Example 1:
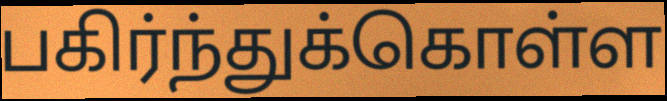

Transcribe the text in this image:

பகிர்ந்துக்கொள்ள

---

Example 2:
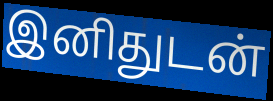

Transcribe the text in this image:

இனிதுடன்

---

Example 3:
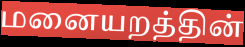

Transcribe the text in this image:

மனையறத்தின்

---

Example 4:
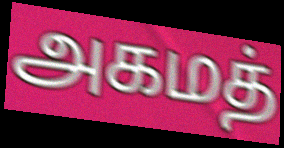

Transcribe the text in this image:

அகமத்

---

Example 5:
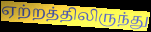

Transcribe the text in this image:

ஏற்றத்திலிருந்து